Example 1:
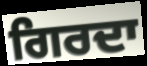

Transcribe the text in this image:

ਗਿਰਦਾ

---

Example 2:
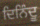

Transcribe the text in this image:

ਦਿਨਿੰਦੂ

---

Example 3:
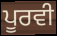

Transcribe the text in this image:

ਪੂਰਵੀ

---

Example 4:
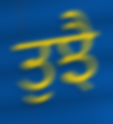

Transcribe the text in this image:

ਤੁਝੈ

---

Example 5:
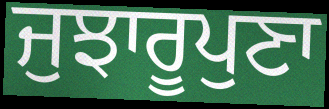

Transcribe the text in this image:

ਜੁਝਾਰੂਪੁਣਾ